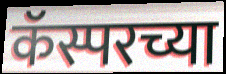
कॅस्परच्या